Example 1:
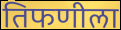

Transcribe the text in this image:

तिफणीला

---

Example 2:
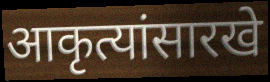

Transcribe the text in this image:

आकृत्यांसारखे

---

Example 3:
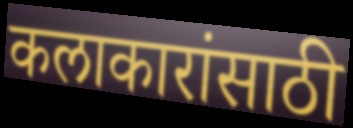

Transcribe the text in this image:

कलाकारांसाठी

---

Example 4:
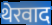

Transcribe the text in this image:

थेरवाद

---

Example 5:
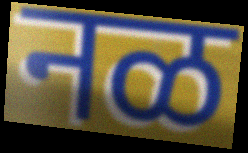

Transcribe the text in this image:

नळ